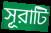
সূরাটি